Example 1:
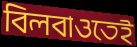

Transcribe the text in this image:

বিলবাওতেই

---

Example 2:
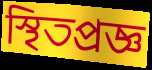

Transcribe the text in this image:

স্থিতপ্রজ্ঞ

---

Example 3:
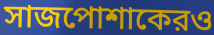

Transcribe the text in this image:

সাজপোশাকেরও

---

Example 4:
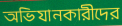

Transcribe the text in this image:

অভিযানকারীদের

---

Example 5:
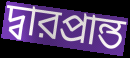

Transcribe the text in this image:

দ্বারপ্রান্ত